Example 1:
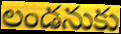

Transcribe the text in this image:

లండనుకు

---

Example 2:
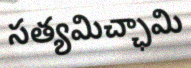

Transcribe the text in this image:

సత్యమిచ్ఛామి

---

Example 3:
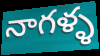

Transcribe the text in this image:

నాగళ్ళ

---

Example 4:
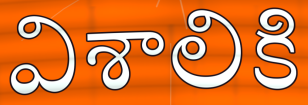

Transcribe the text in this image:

విశాలికి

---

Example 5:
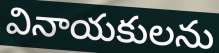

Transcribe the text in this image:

వినాయకులను